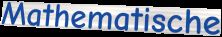
Mathematische